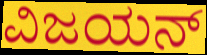
ವಿಜಯನ್